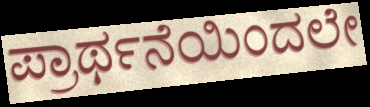
ಪ್ರಾರ್ಥನೆಯಿಂದಲೇ